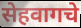
सेहवागचे